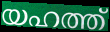
യഹത്ത്